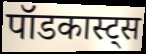
पॉडकास्ट्स